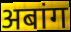
अबांग